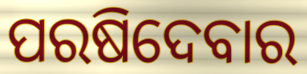
ପରଷିଦେବାର